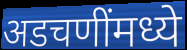
अडचणींमध्ये